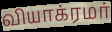
வியாக்ரமர்